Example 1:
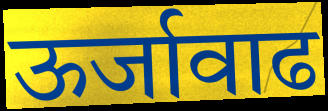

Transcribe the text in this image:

ऊर्जावाढ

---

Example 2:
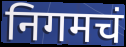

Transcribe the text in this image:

निगमचं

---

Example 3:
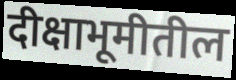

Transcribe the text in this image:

दीक्षाभूमीतील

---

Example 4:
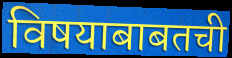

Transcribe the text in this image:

विषयाबाबतची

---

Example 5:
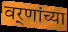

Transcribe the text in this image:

वर्णांच्या